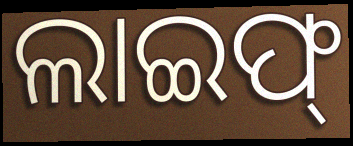
ଲାଇଫ୍